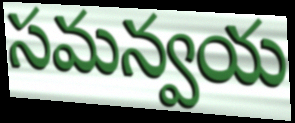
సమన్వయ